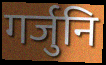
गर्जुनि